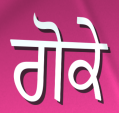
ਗੋਕੇ